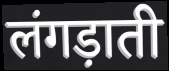
लंगड़ाती